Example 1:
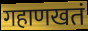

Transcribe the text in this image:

गहाणखतं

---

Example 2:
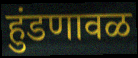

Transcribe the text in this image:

हुंडणावळ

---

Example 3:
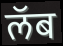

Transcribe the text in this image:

लॅब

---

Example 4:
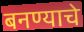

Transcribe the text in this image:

बनण्याचे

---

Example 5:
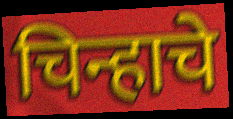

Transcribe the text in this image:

चिन्हाचे